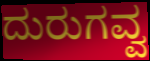
ದುರುಗವ್ವ